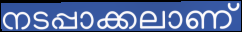
നടപ്പാക്കലാണ്